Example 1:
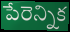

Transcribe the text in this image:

పేరెన్నిక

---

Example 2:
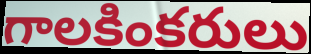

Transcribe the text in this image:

గాలకింకరులు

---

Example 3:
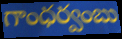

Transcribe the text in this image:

గాంధర్వంబు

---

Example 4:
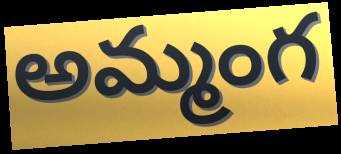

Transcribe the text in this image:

అమ్మంగ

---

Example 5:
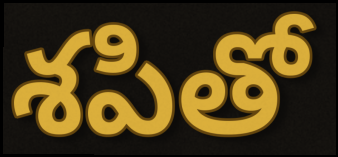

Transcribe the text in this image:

శపితో